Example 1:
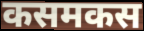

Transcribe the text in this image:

कसमकस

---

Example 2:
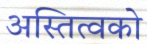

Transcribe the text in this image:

अस्तित्वको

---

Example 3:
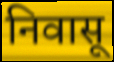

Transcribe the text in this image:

निवासू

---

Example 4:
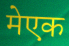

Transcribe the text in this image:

मेएक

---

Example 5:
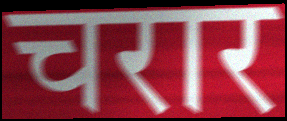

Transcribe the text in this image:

चरार